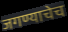
जगण्याचेच